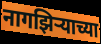
नागझिऱ्याच्या